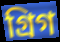
গ্রিগ